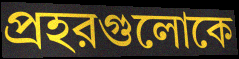
প্রহরগুলোকে